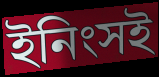
ইনিংসই